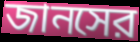
জানসের